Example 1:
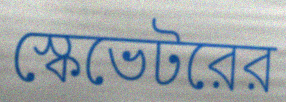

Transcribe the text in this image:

স্কেভেটরের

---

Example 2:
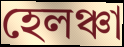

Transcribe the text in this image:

হেলঞ্চা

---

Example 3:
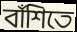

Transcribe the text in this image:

বাঁশিতে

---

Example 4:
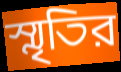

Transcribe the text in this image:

স্মৃতির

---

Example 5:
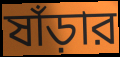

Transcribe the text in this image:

ষাঁড়ার